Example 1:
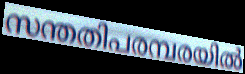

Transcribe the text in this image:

സന്തതിപരമ്പരയിൽ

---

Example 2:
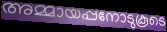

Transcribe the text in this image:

അമ്മായപ്പനോടുകൂടെ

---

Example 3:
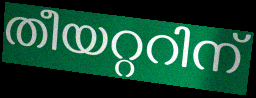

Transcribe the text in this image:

തീയറ്ററിന്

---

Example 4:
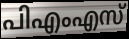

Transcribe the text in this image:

പിഎംഎസ്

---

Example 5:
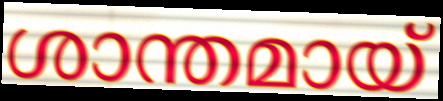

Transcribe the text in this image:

ശാന്തമായ്